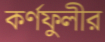
কর্ণফুলীর